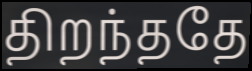
திறந்ததே